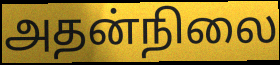
அதன்நிலை